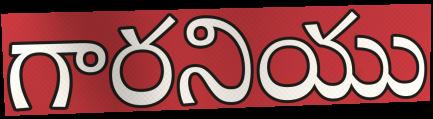
గారనియు